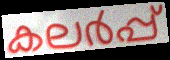
കലർപ്പ്